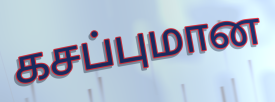
கசப்புமான